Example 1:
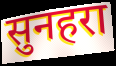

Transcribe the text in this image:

सुनहरा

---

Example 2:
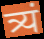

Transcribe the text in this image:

त्र्यं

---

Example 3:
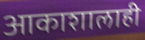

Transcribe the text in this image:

आकाशालाही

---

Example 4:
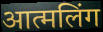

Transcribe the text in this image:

आत्मलिंग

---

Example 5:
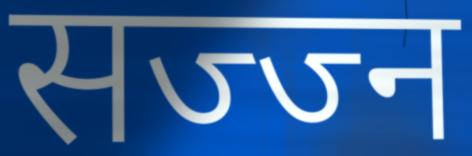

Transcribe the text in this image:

सज्ज्न